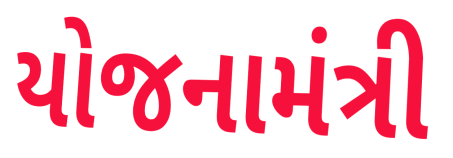
યોજનામંત્રી